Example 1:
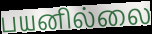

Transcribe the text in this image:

பயனில்லை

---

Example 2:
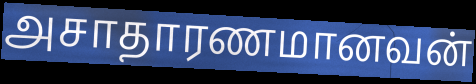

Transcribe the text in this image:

அசாதாரணமானவன்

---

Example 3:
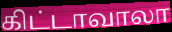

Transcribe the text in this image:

கிட்டாவாலா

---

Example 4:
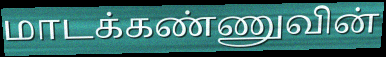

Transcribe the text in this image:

மாடக்கண்ணுவின்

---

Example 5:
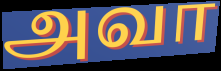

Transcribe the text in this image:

அவா